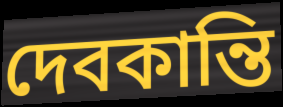
দেবকান্তি